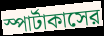
স্পার্টাকাসের